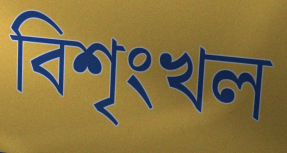
বিশৃংখল